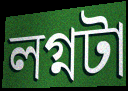
লগ্নটা